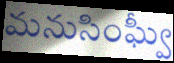
మనుసింఘ్వీ